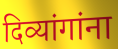
दिव्यांगांना